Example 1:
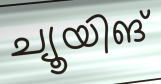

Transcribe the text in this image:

ച്യൂയിങ്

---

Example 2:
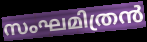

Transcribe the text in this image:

സംഘമിത്രൻ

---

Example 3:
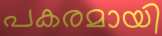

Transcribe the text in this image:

പകരമായി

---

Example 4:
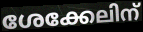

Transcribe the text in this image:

ശേക്കേലിന്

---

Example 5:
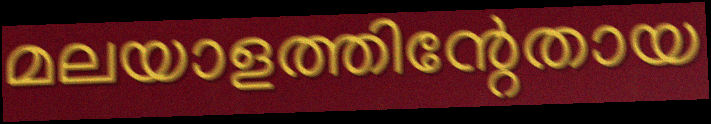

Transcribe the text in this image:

മലയാളത്തിന്റേതായ